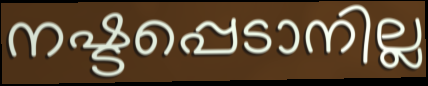
നഷ്ടപ്പെടാനില്ല